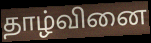
தாழ்வினை